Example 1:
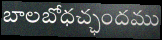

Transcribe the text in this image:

బాలబోధచ్ఛందము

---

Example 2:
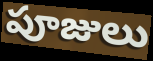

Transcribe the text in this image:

పూజులు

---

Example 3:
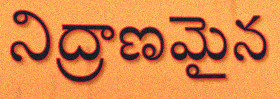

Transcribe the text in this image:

నిద్రాణమైన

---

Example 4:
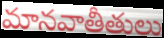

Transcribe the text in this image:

మానవాతీతులు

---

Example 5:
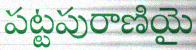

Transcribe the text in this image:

పట్టపురాణియై